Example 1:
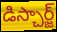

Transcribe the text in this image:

డిస్చార్జ్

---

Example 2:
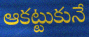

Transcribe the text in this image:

ఆకట్టుకునే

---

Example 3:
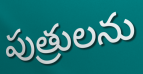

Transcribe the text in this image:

పుత్రులను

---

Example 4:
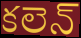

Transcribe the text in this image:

కలెన్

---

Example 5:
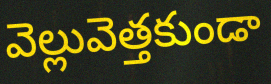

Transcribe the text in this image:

వెల్లువెత్తకుండా